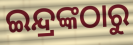
ଇନ୍ଦ୍ରଙ୍କଠାରୁ